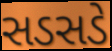
સડસડે